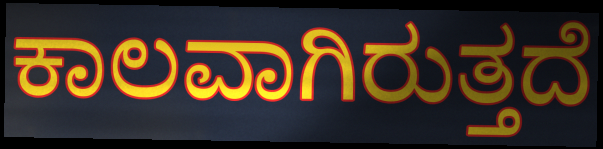
ಕಾಲವಾಗಿರುತ್ತದೆ